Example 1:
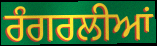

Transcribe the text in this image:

ਰੰਗਰਲੀਆਂ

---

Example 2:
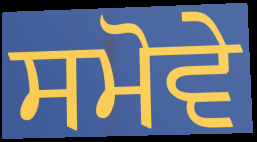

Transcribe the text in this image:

ਸਮੋਵੇ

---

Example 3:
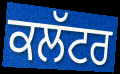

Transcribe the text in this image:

ਕਲੱਟਰ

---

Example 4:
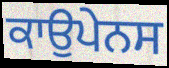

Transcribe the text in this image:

ਕਾਉਪੇਨਸ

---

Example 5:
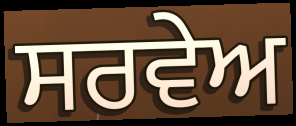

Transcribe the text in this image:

ਸਰਵੇਅ